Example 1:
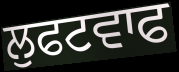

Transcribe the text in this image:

ਲੁਫਟਵਾਫ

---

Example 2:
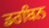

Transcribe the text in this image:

ਡਰਬਿਨ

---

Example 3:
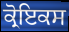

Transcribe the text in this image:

ਕ੍ਰੋਇਕਸ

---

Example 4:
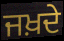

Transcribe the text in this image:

ਜਖ਼ਦੇ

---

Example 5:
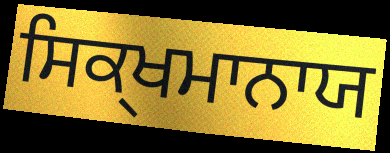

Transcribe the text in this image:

ਸਿਕ੍ਖਮਾਨਾਯ